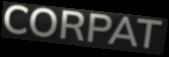
CORPAT